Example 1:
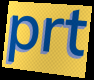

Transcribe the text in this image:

prt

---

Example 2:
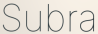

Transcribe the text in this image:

Subra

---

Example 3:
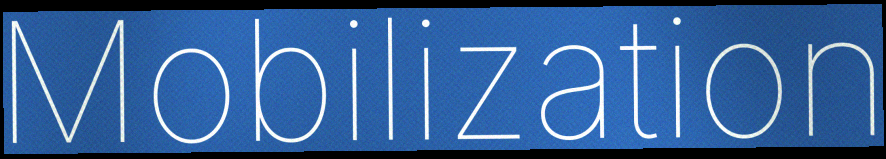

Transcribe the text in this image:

Mobilization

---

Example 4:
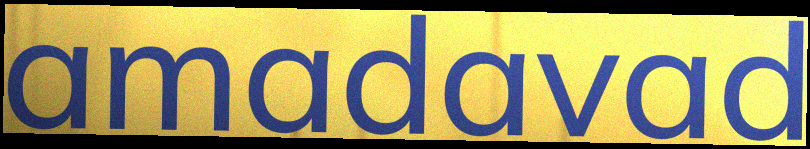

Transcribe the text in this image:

amadavad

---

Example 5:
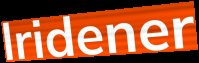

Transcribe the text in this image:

lridener